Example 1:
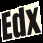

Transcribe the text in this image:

Edx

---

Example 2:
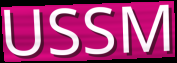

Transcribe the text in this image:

USSM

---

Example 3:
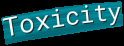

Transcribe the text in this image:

Toxicity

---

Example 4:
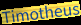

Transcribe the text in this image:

Timotheus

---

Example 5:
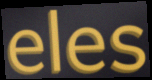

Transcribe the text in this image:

eles